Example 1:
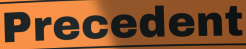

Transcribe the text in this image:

Precedent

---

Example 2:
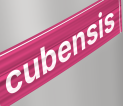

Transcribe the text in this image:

cubensis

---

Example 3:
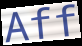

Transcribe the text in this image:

Aff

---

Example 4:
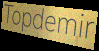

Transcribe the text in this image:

Topdemir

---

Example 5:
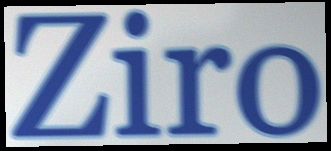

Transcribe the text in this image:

Ziro